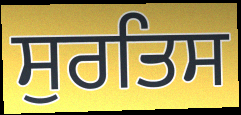
ਸੁਰਤਿਸ